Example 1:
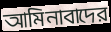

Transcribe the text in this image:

আমিনাবাদের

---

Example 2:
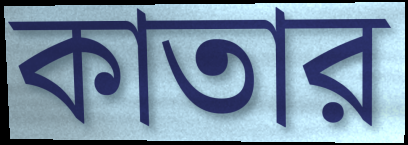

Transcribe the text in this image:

কাতার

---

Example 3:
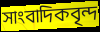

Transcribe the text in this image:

সাংবাদিকবৃন্দ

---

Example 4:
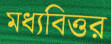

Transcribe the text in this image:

মধ্যবিত্তর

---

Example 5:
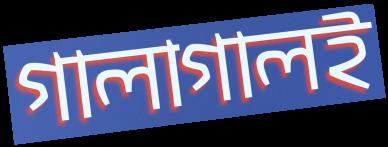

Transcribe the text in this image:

গালাগালই